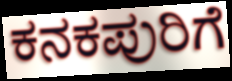
ಕನಕಪುರಿಗೆ